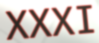
XXXI